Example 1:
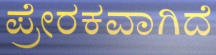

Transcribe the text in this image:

ಪ್ರೇರಕವಾಗಿದೆ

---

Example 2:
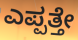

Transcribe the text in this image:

ಎಪ್ಪತ್ತೇ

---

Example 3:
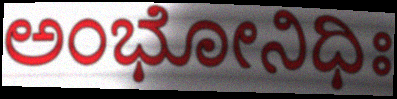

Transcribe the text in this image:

ಅಂಭೋನಿಧಿಃ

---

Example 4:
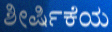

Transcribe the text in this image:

ಶೀರ್ಷಿಕೆಯ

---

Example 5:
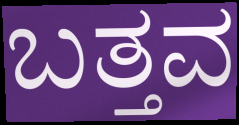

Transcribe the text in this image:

ಬತ್ತವ